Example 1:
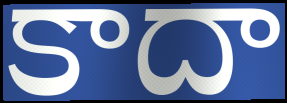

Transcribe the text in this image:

కాదా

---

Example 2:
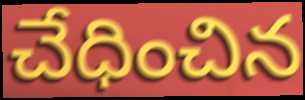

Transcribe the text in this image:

చేధించిన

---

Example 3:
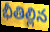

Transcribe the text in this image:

భీతిల్లిన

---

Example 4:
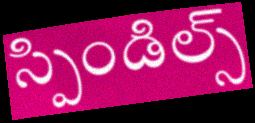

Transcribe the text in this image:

స్పిండిల్స్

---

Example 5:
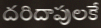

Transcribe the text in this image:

దరిదాపులకే